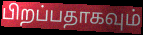
பிறப்பதாகவும்